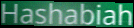
Hashabiah